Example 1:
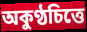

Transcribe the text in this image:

অকুণ্ঠচিত্তে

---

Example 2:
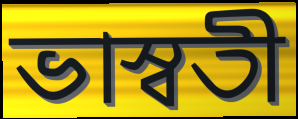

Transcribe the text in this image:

ভাস্বতী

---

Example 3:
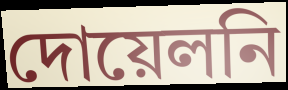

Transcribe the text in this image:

দোয়েলনি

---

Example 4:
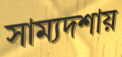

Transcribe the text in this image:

সাম্যদশায়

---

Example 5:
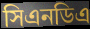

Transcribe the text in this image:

সিএনডিএ